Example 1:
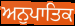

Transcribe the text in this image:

ਅਨੁਪਾਤਿਕ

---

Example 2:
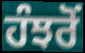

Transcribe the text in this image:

ਹੰਝਰੋਂ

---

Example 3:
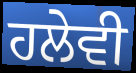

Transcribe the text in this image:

ਹਲੇਵੀ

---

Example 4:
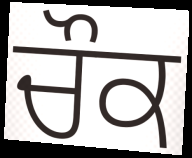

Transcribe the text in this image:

ਚੌਕ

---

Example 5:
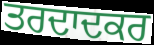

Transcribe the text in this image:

ਤਰਦਾਦਕਰ